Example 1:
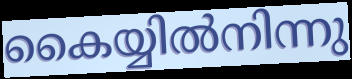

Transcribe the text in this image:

കൈയ്യിൽനിന്നു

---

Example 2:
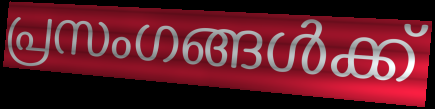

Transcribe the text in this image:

പ്രസംഗങ്ങൾക്ക്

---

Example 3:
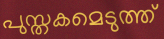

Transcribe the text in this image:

പുസ്തകമെടുത്ത്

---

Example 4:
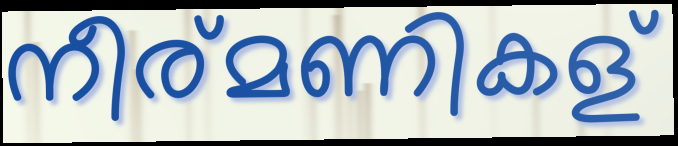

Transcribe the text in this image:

നീര്മണികള്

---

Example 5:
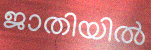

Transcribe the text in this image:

ജാതിയിൽ